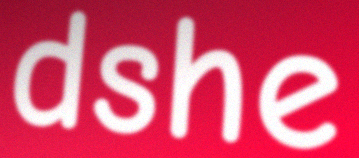
dshe